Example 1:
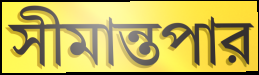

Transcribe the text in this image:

সীমান্তপার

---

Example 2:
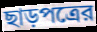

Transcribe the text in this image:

ছাড়পত্রের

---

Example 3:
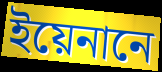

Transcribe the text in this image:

ইয়েনানে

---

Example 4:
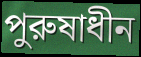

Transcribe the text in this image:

পুরুষাধীন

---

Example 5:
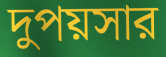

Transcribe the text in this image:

দুপয়সার